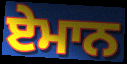
ਏਮਾਨ